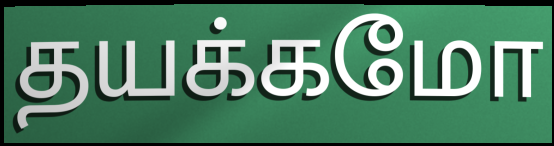
தயக்கமோ